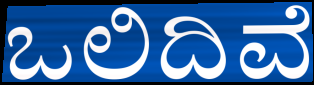
ಒಲಿದಿವೆ